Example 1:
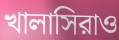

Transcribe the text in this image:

খালাসিরাও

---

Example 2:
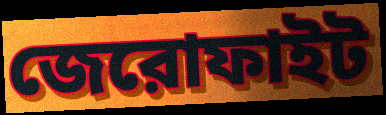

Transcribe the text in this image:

জেরোফাইট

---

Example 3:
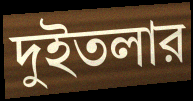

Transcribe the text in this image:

দুইতলার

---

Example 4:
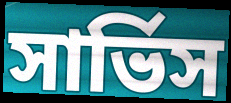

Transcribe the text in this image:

সার্ভিস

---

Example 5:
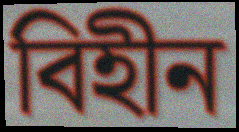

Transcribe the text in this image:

বিহীন